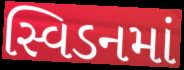
સ્વિડનમાં